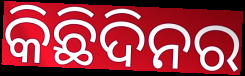
କିଛିଦିନର